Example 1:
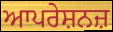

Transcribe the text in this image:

ਆਪਰੇਸ਼ਨਜ਼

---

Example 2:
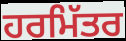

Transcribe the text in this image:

ਹਰਮਿੱਤਰ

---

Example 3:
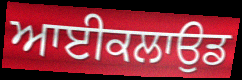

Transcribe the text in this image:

ਆਈਕਲਾਉਡ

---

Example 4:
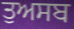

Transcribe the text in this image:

ਤੁਅਸਬ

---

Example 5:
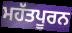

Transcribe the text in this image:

ਮਹੱਤਪੂਰਨ